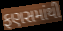
ફણસમાંથી